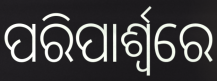
ପରିପାର୍ଶ୍ୱରେ